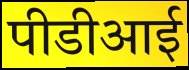
पीडीआई